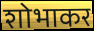
शोभाकर